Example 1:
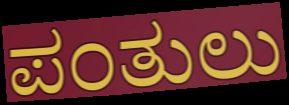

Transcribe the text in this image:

ಪಂತುಲು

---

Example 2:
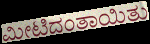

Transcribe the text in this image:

ಮೀಟಿದಂತಾಯಿತು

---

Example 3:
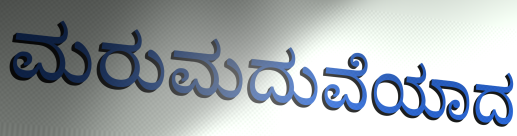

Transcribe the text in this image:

ಮರುಮದುವೆಯಾದ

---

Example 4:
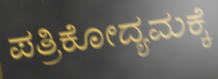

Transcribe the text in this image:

ಪತ್ರಿಕೋದ್ಯಮಕ್ಕೆ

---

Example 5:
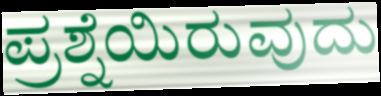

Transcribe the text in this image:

ಪ್ರಶ್ನೆಯಿರುವುದು